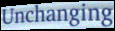
Unchanging